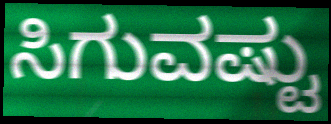
ಸಿಗುವಷ್ಟು